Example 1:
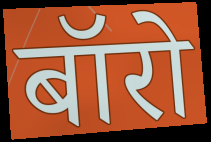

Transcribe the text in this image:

बॉरो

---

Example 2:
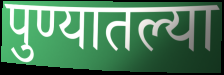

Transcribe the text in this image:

पुण्यातल्या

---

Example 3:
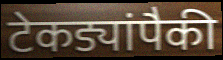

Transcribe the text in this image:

टेकड्यांपैकी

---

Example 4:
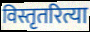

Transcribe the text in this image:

विस्तृतरित्या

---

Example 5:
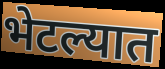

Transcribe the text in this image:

भेटल्यात